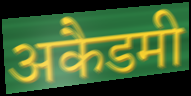
अकैडमी